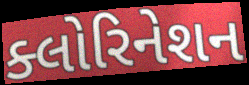
ક્લોરિનેશન